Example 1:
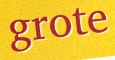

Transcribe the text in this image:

grote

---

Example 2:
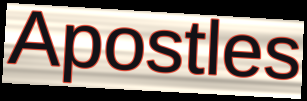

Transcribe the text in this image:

Apostles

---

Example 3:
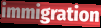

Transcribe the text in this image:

immigration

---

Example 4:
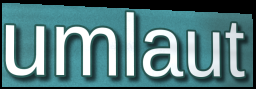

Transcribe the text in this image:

umlaut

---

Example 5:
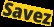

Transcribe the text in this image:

Savez